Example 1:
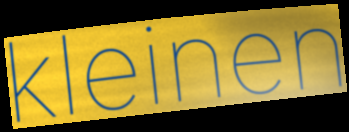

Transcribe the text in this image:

kleinen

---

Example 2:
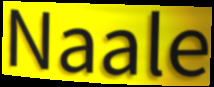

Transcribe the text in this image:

Naale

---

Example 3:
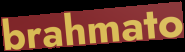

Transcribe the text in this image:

brahmato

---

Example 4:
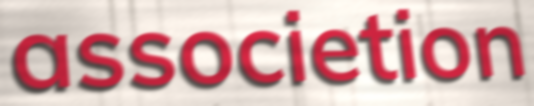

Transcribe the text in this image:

associetion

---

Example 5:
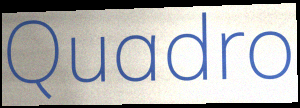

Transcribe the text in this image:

Quadro